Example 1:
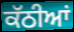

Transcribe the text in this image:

ਕੱਠੀਆਂ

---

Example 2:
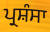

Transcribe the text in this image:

ਪ੍ਰਸ਼ੰਸਾ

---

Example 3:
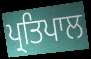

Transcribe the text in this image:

ਪ੍ਰਤਿਪਾਲ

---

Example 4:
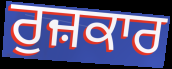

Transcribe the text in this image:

ਰੁਜ਼ਕਾਰ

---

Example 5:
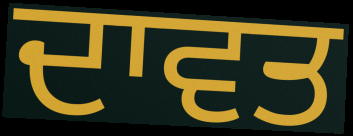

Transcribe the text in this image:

ਦਾਵਤ